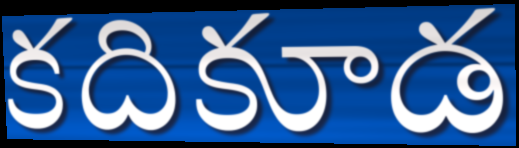
కదికూడ